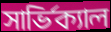
সার্ভিক্যাল